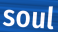
soul